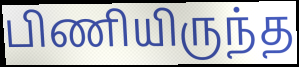
பிணியிருந்த